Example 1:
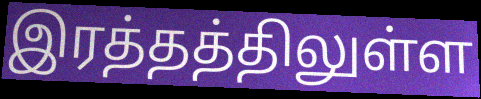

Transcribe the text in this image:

இரத்தத்திலுள்ள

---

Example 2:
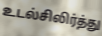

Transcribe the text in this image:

உடல்சிலிர்த்து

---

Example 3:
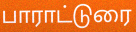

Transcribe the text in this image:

பாராட்டுரை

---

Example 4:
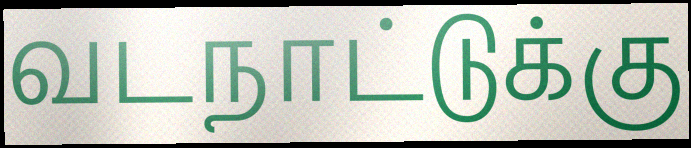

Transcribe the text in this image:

வடநாட்டுக்கு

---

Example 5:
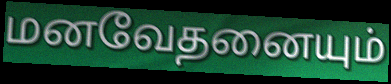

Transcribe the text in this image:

மனவேதனையும்